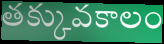
తక్కువకాలం